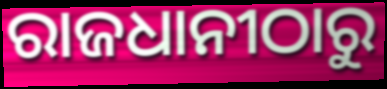
ରାଜଧାନୀଠାରୁ